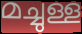
മച്ചുള്ള